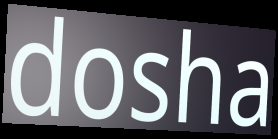
dosha